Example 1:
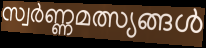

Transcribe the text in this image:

സ്വർണ്ണമത്സ്യങ്ങൾ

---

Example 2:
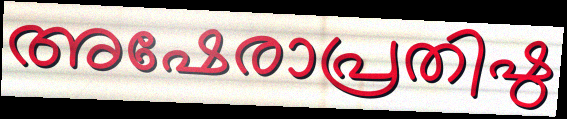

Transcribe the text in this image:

അഷേരാപ്രതിഷ്ഠ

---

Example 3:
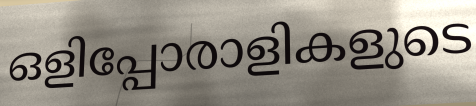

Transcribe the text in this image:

ഒളിപ്പോരാളികളുടെ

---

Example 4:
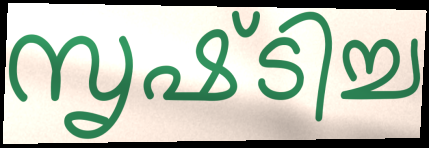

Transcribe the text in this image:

സൃഷ്‌ടിച്ച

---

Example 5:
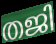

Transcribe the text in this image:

തജി